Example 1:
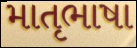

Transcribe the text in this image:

માતૃભાષા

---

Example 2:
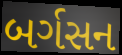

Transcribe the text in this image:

બર્ગસન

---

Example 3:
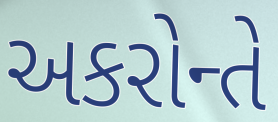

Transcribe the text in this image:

અકરોન્તે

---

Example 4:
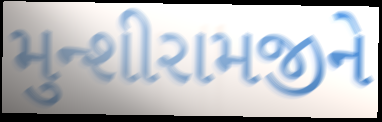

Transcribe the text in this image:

મુન્શીરામજીને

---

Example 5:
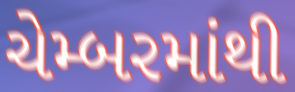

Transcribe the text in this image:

ચેમ્બરમાંથી